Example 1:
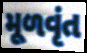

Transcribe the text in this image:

મૂળવૃંત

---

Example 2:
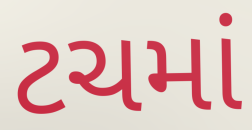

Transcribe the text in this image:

ટચમાં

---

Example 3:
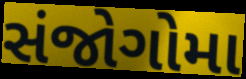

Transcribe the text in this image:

સંજોગોમા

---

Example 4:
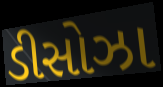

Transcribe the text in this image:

ડીસોઝા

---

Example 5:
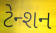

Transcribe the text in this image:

ટેન્શન